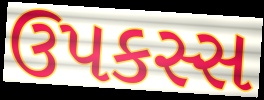
ઉપકસ્સ